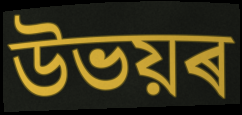
উভয়ৰ